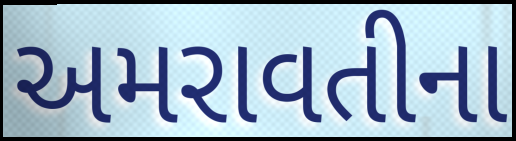
અમરાવતીના